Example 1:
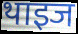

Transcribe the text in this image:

थाइज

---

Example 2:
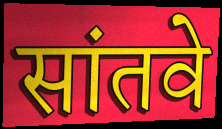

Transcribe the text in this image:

सांतवे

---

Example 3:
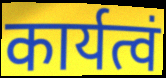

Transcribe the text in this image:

कार्यत्वं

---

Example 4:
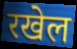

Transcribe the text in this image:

रखेल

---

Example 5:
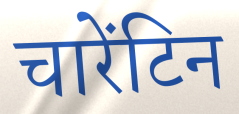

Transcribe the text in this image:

चारेंटिन